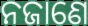
ନଜାଣେ